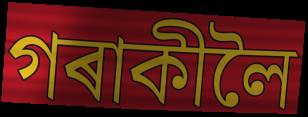
গৰাকীলৈ